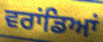
ਵਰਾਂਡਿਆਂ